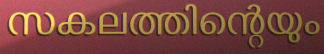
സകലത്തിന്റെയും